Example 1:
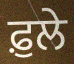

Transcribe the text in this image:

ਫ਼ੁਲੇ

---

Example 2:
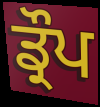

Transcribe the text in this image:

ਡ੍ਰੌਪ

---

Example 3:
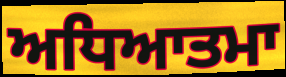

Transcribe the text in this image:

ਅਧਿਆਤਮਾ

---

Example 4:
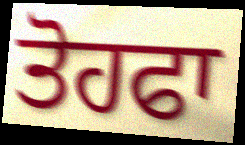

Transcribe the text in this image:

ਤੋਹਫਾ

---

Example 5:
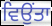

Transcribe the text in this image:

ਵਿਉਂਤਾ